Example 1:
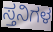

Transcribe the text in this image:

ಸ್ತನಿಗಳ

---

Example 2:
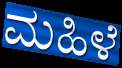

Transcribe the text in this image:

ಮಹಿಳೆ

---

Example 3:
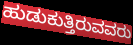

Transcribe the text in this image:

ಹುಡುಕುತ್ತಿರುವವರು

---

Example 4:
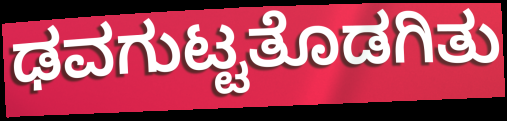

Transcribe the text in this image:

ಢವಗುಟ್ಟತೊಡಗಿತು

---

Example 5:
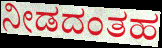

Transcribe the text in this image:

ನೀಡದಂತಹ